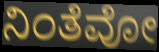
ನಿಂತೆವೋ